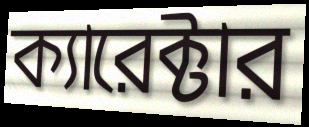
ক্যারেক্টার